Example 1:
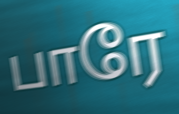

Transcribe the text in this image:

பாரே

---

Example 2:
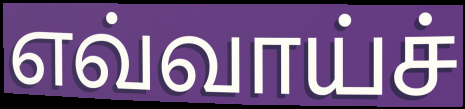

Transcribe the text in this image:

எவ்வாய்ச்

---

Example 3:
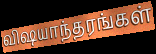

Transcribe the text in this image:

விஷயாந்தரங்கள்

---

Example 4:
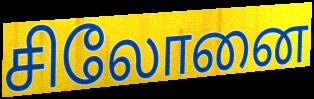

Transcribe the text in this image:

சிலோனை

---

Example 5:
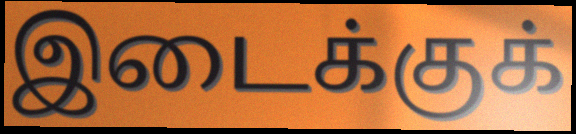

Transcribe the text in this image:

இடைக்குக்